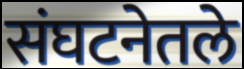
संघटनेतले